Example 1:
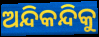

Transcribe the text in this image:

ଅନ୍ଦିକନ୍ଦିକୁ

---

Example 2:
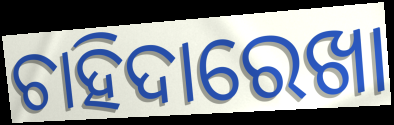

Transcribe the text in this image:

ଚାହିଦାରେଖା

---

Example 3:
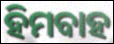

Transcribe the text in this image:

ହିମବାହ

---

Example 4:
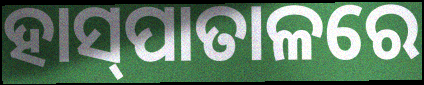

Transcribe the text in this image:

ହାସ୍‌ପାତାଳରେ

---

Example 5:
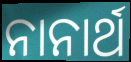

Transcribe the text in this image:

ନାନାର୍ଥ